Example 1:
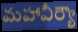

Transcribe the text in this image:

మహావీర్యౌ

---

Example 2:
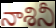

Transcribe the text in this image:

నాశినీ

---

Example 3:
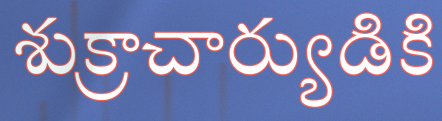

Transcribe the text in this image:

శుక్రాచార్యుడికి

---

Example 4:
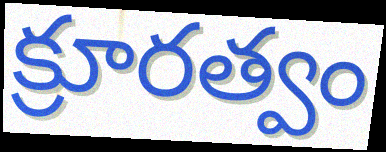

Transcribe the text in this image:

క్రూరత్వం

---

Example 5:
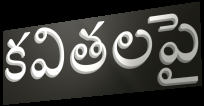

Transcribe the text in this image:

కవితలపై